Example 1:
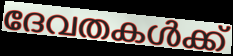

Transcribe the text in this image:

ദേവതകൾക്ക്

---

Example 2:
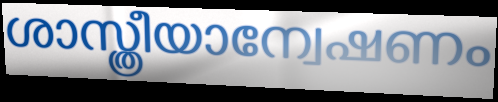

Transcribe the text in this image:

ശാസ്ത്രീയാന്വേഷണം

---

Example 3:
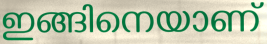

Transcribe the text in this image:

ഇങ്ങിനെയാണ്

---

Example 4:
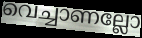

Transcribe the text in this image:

വെച്ചാണല്ലോ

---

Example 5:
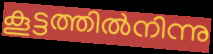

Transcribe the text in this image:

കൂട്ടത്തിൽനിന്നു